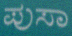
ಪುಸಾ